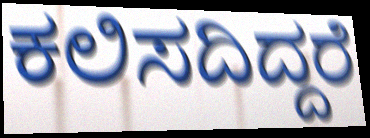
ಕಲಿಸದಿದ್ದರೆ